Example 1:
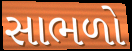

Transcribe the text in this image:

સાભળો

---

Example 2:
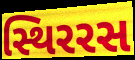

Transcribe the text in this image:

સ્થિરરસ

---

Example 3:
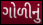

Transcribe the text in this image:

ગોળીનું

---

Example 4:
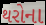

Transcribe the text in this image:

થરોના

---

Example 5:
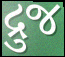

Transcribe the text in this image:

દ્રુજ